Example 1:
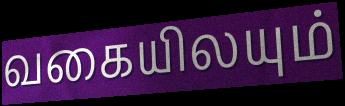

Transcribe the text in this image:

வகையிலயும்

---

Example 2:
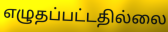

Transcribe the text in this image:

எழுதப்பட்டதில்லை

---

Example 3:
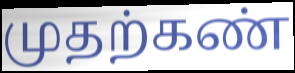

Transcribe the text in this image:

முதற்கண்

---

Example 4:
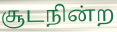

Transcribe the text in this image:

சூடநின்ற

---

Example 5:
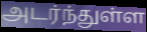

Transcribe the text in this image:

அடர்ந்துள்ள